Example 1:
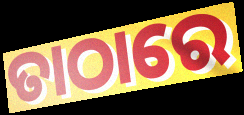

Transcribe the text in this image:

ତାଠାରେ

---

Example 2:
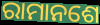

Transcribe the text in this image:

ରାମାନଶେ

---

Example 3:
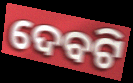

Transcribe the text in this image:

ଦେବଟି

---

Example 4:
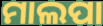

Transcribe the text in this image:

ମାଲପା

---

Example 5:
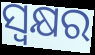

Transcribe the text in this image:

ସ୍ୱକ୍ଷର